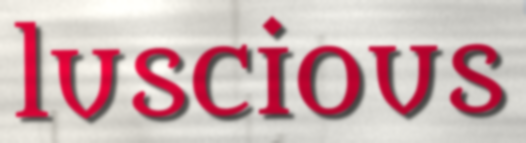
luscious